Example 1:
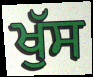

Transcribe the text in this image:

ਖੁੱਸ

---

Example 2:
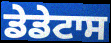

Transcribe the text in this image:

ਡੇਡੇਟਾਸ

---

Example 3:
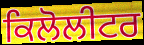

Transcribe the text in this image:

ਕਿਲੋਲੀਟਰ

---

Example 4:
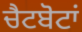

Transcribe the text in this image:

ਚੈਟਬੋਟਾਂ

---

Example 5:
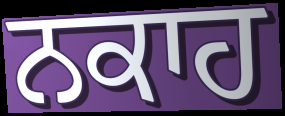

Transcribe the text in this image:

ਨਕਾਹ